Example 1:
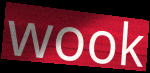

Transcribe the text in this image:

wook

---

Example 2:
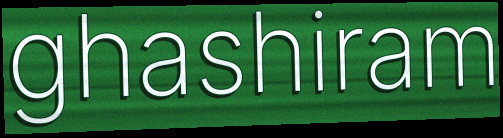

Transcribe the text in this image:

ghashiram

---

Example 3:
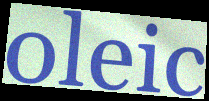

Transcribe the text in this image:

oleic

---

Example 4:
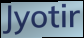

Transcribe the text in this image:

Jyotir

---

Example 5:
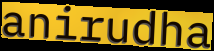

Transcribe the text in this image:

anirudha